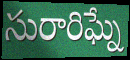
సురారిఘ్నే